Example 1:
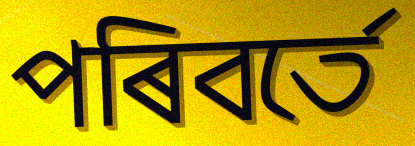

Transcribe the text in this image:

পৰিবৰ্তে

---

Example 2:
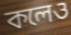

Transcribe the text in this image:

কলেও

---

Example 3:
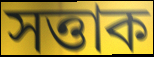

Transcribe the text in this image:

সত্তাক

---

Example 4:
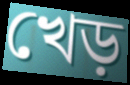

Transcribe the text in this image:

খেড়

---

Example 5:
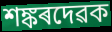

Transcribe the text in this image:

শঙ্কৰদেৱক